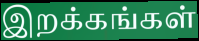
இறக்கங்கள்